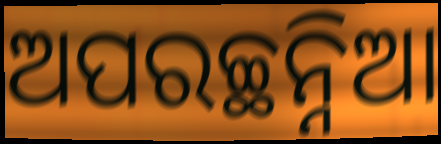
ଅପରଚ୍ଛନ୍ନିଆ